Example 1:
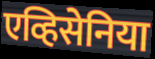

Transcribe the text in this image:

एव्हिसेनिया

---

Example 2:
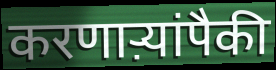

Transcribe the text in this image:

करणाऱ्‍यांपैकी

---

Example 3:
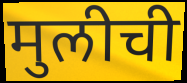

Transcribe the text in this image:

मुलीची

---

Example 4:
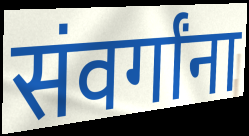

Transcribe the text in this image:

संवर्गांना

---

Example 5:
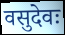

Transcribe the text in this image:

वसुदेवः